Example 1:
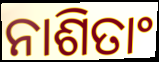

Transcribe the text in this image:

ନାଶିତାଂ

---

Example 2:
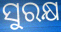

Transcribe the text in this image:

ସୁରକ୍ଷ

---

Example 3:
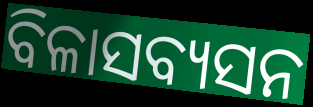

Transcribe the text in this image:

ବିଳାସବ୍ୟସନ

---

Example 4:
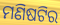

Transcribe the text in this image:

ମଣିଷଟିର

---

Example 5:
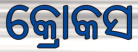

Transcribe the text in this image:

କ୍ରୋକସ